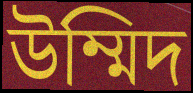
উম্মিদ